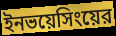
ইনভয়েসিংয়ের